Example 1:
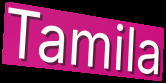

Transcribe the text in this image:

Tamila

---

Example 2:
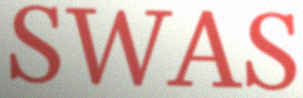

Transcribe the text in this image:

SWAS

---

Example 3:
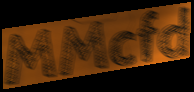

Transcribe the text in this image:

MMcfd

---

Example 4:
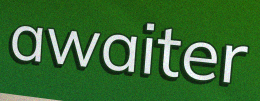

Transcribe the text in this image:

awaiter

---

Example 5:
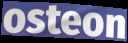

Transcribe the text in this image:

osteon